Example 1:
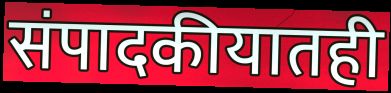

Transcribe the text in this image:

संपादकीयातही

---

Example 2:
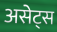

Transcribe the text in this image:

असेट्स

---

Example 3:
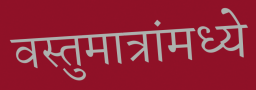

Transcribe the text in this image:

वस्तुमात्रांमध्ये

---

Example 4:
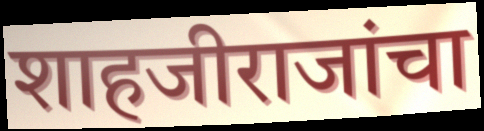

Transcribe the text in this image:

शाहजीराजांचा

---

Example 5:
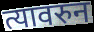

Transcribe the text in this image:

त्यावरुन